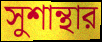
সুশান্থার